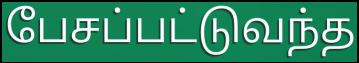
பேசப்பட்டுவந்த